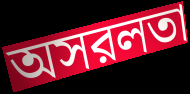
অসরলতা